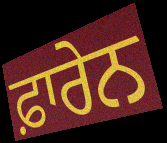
ਫ਼ਾਰੇਨ